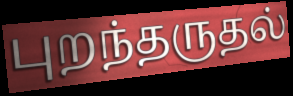
புறந்தருதல்